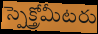
స్పెక్త్రోమీటరు